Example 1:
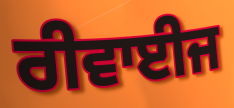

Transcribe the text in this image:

ਰੀਵਾਈਜ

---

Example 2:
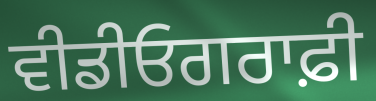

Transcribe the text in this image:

ਵੀਡੀਓਗਰਾਫ਼ੀ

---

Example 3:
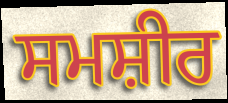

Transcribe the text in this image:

ਸਮਸ਼ੀਰ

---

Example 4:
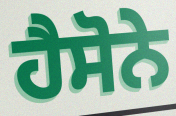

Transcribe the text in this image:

ਹੈਸੋਨੇ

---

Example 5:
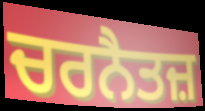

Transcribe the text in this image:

ਚਰਨੈਤਜ਼